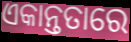
ଏକାନ୍ତତାରେ